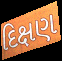
દિક્ષણ